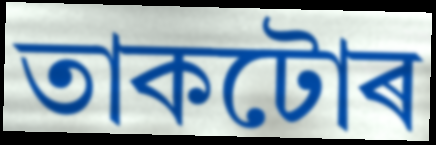
তাকটোৰ